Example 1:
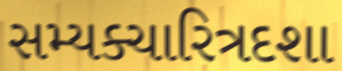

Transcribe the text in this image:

સમ્યક્ચારિત્રદશા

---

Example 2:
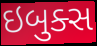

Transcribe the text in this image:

ઇબુક્સ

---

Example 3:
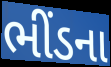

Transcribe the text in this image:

ભીંડના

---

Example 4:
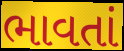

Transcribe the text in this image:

ભાવતાં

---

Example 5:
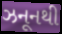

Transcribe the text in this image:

ઝનૂનથી